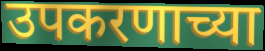
उपकरणाच्या